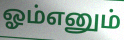
ஓம்எனும்